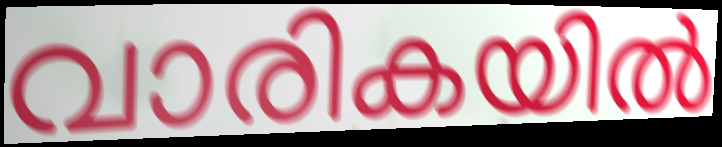
വാരികയിൽ